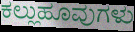
ಕಲ್ಲುಹೂವುಗಳು